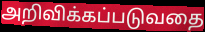
அறிவிக்கப்படுவதை